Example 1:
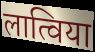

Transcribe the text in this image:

लात्विया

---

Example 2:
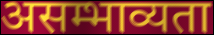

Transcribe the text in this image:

असम्भाव्यता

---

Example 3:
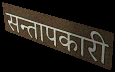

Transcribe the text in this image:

सन्तापकारी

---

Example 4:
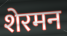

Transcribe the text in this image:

शेरमन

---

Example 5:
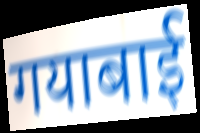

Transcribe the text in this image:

गयाबाई